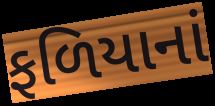
ફળિયાનાં